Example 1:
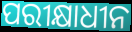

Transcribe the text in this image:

ପରୀକ୍ଷାଧୀନ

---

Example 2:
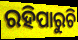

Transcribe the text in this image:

ରହିପାରୁଚି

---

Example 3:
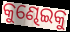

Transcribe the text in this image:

କୁଣ୍ଢେଇକୁ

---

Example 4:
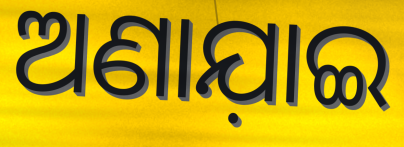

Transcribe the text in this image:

ଅଣାଯ଼ାଇ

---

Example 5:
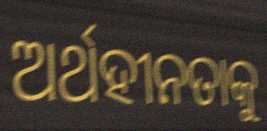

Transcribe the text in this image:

ଅର୍ଥହୀନତାକୁ